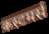
कस्‍टमर्स